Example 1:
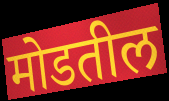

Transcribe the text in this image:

मोडतील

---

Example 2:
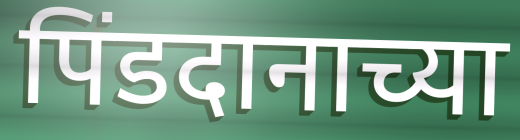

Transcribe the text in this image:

पिंडदानाच्या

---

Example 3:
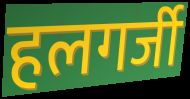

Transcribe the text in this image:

हलगर्जी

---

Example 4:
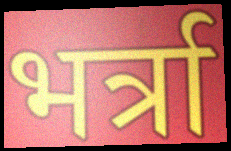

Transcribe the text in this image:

भर्त्रा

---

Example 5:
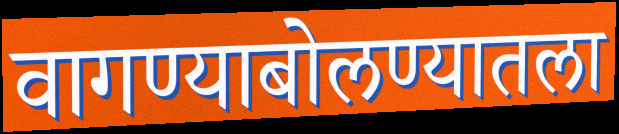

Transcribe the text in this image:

वागण्याबोलण्यातला